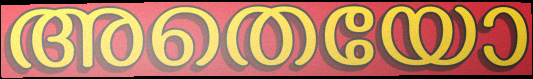
അതെയോ